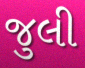
જુલી